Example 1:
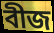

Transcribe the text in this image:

বীজ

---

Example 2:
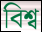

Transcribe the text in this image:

বিশ্ব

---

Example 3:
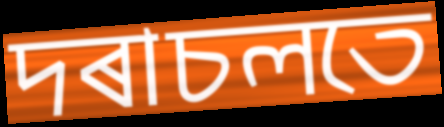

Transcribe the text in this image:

দৰাচলতে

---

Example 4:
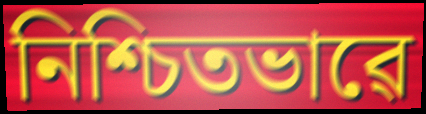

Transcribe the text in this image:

নিশ্চিতভাৱে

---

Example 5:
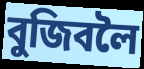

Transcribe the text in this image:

বুজিবলৈ